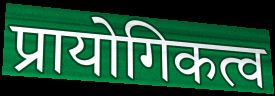
प्रायोगिकत्व